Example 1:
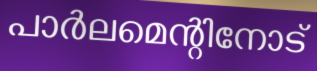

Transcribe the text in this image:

പാർലമെന്റിനോട്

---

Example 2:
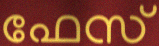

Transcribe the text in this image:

ഫേസ്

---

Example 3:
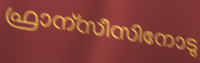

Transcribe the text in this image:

ഫ്രാന്സീസിനോടു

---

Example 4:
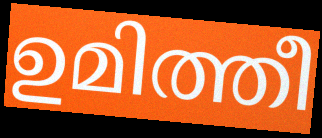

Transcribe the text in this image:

ഉമിത്തീ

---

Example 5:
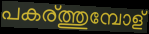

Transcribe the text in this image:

പകര്ത്തുമ്പോള്